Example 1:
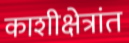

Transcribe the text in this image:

काशीक्षेत्रांत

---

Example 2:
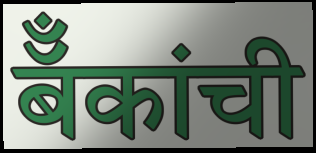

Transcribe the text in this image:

बॅँकांची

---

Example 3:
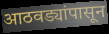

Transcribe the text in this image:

आठवड्यांपासून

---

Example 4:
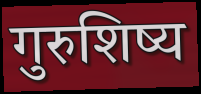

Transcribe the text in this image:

गुरुशिष्य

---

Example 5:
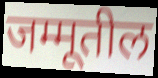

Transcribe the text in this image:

जम्मूतील